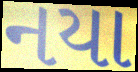
નયા